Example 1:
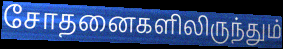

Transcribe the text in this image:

சோதனைகளிலிருந்தும்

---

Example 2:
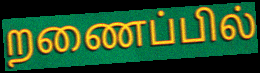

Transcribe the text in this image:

றணைப்பில்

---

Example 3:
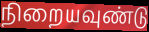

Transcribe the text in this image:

நிறையவுண்டு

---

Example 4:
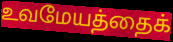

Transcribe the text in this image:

உவமேயத்தைக்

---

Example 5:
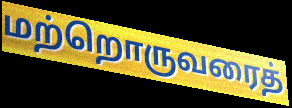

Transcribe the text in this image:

மற்றொருவரைத்